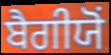
ਬੈਗੀਯੋਂ